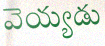
వెయ్యడు